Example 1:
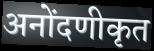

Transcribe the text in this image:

अनोंदणीकृत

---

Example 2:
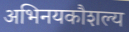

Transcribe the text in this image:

अभिनयकौशल्य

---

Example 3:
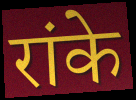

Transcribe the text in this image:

रांके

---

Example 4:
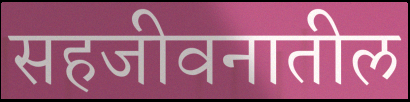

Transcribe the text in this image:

सहजीवनातील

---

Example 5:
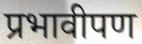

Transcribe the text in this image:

प्रभावीपण